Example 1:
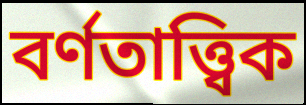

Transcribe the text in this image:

বৰ্ণতাত্ত্বিক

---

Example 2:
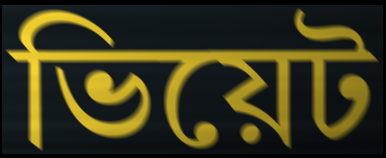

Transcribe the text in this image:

ভিয়েট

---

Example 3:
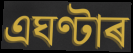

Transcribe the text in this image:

এঘণ্টাৰ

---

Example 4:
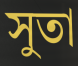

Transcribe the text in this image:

সুতা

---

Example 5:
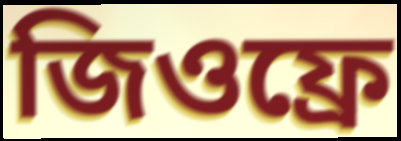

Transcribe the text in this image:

জিওফ্ৰে